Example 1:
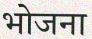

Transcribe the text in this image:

भोजना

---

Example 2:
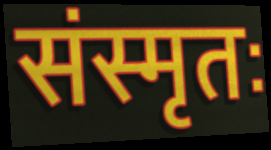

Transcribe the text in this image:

संस्मृतः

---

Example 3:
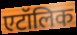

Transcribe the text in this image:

एटॉलिक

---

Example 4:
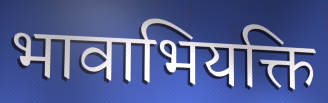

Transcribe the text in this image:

भावाभियक्ति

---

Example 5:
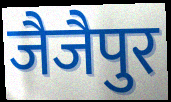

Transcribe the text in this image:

जैजैपुर